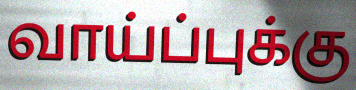
வாய்ப்புக்கு